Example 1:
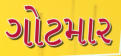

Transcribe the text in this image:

ગોટમાર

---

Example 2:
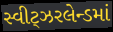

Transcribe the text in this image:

સ્વીટ્ઝરલેન્ડમાં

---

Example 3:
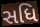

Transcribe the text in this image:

સધિ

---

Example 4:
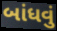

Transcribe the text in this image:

બાંધવું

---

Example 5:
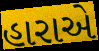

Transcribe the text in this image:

હારાએ